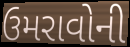
ઉમરાવોની